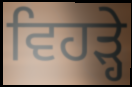
ਵਿਹੜ੍ਹੇ